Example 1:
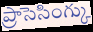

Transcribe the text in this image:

ప్రాసెసింగ్కు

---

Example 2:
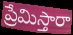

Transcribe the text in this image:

ప్రేమిస్తారా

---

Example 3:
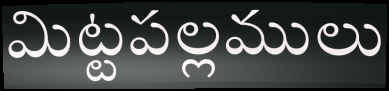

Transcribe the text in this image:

మిట్టపల్లములు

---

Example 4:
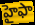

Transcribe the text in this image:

హైఫా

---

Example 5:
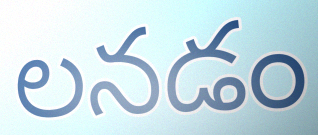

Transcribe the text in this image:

లనడం